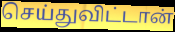
செய்துவிட்டான்